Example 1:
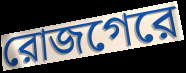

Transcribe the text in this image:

রোজগেরে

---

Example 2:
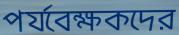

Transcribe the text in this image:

পর্যবেক্ষকদের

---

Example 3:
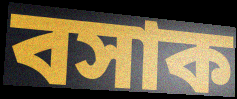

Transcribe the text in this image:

বসাক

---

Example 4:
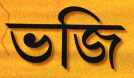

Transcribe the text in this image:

ভজি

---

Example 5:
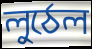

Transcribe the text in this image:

লুঠেল